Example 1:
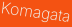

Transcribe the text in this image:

Komagata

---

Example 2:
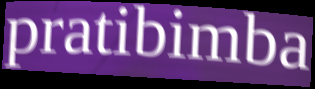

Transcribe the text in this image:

pratibimba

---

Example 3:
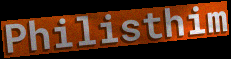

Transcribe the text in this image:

Philisthim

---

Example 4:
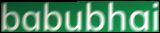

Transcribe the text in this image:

babubhai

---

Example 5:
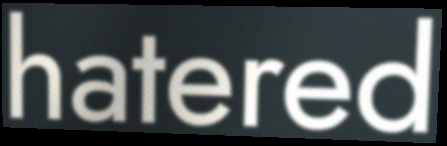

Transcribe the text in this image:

hatered